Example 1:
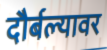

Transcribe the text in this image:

दौर्बल्यावर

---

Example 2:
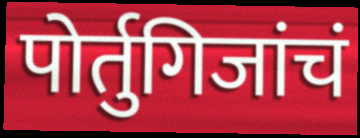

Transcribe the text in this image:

पोर्तुगिजांचं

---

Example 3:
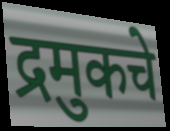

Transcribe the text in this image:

द्रमुकचे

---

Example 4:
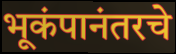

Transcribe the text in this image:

भूकंपानंतरचे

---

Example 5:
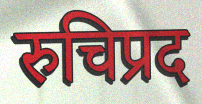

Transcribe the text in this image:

रुचिप्रद